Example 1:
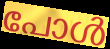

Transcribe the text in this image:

പോൾ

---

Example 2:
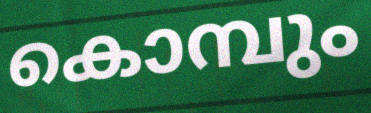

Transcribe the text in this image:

കൊമ്പും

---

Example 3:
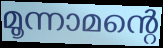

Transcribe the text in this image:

മൂന്നാമന്റെ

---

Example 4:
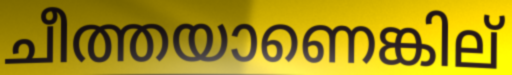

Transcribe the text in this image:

ചീത്തയാണെങ്കില്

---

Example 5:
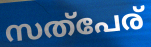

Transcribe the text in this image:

സത്പേര്